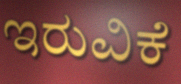
ಇರುವಿಕೆ